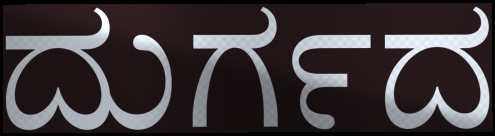
ದುರ್ಗದ